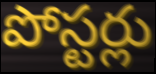
పోస్టర్లు